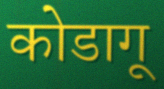
कोडागू